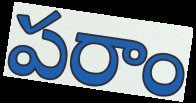
పరాం